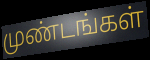
முண்டங்கள்